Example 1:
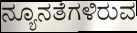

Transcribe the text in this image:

ನ್ಯೂನತೆಗಳಿರುವ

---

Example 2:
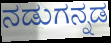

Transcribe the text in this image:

ನಡುಗನ್ನಡ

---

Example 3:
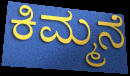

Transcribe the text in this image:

ಕಿಮ್ಮನೆ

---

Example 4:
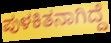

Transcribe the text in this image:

ಪುಳಕಿತನಾಗಿದ್ದೆ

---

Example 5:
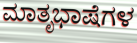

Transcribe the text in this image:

ಮಾತೃಭಾಷೆಗಳ